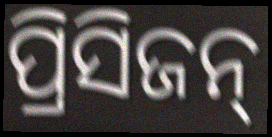
ପ୍ରିସିଜନ୍